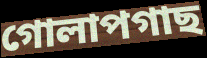
গোলাপগাছ